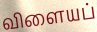
விளையப்